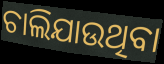
ଚାଲିଯାଉଥିବା